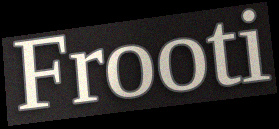
Frooti